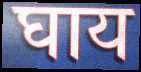
घाय